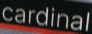
cardinal